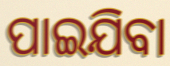
ପାଇଯିବା